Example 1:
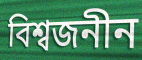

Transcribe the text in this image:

বিশ্বজনীন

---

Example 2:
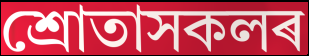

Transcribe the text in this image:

শ্ৰোতাসকলৰ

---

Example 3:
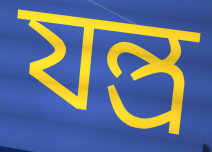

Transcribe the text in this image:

যন্ত্ৰ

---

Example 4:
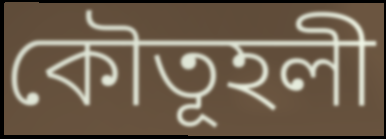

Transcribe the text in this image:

কৌতূহলী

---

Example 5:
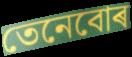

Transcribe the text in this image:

তেনেবোৰ